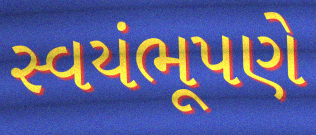
સ્વયંભૂપણે